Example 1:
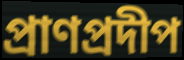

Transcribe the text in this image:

প্রাণপ্রদীপ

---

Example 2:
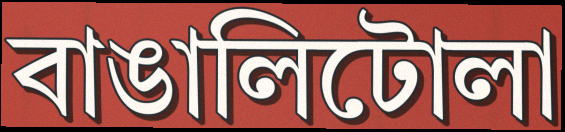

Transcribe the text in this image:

বাঙালিটোলা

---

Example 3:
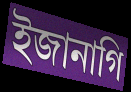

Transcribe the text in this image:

ইজানাগি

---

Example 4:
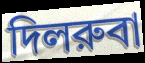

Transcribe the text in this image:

দিলরুবা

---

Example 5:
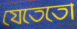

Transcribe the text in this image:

যেতেতো